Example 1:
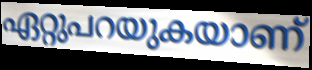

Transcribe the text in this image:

ഏറ്റുപറയുകയാണ്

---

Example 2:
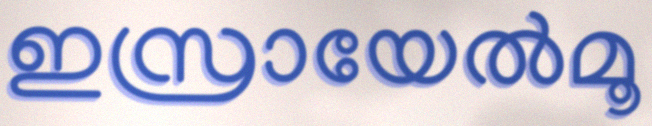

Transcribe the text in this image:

ഇസ്രായേൽമൂ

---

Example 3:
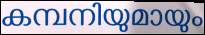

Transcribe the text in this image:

കമ്പനിയുമായും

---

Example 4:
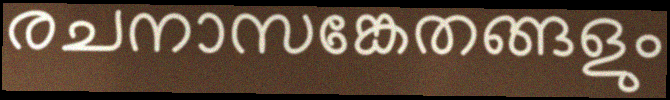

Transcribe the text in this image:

രചനാസങ്കേതങ്ങളും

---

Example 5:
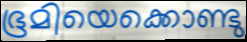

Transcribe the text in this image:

ഭൂമിയെക്കൊണ്ടു